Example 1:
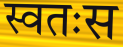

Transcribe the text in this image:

स्वतःस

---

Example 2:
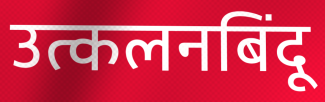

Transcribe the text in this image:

उत्कलनबिंदू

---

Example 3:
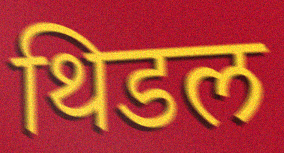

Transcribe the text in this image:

थिडल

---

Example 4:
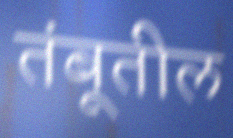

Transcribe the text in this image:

तंबूतील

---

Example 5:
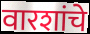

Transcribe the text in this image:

वारशांचे